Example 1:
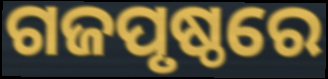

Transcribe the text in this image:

ଗଜପୃଷ୍ଠରେ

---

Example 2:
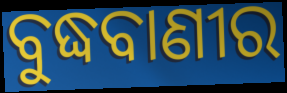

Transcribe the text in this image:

ବୁଦ୍ଧବାଣୀର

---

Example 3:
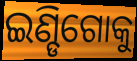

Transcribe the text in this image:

ଇଣ୍ଡିଗୋକୁ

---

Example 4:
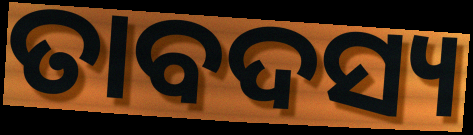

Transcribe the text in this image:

ତାବଦସ୍ୟ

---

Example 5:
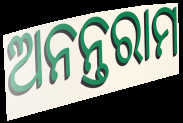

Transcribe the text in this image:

ଅନନ୍ତରାମ